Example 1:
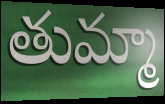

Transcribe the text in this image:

తుమ్మా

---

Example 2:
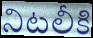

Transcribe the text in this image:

నిటలీకి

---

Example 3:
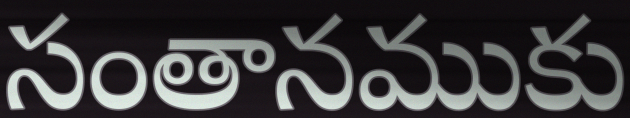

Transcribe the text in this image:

సంతానముకు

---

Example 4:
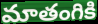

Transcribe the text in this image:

మాతంగికి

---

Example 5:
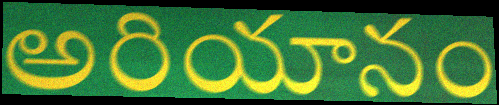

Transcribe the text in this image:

అరియానం